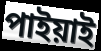
পাইয়াই